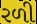
રળી